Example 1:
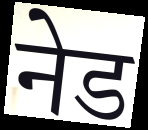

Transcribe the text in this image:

नेड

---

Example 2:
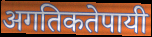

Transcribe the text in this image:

अगतिकतेपायी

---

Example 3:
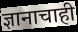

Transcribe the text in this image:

ज्ञानाचाही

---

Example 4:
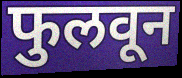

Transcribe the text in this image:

फुलवून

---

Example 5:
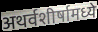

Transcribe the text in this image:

अथर्वशीर्षामध्ये